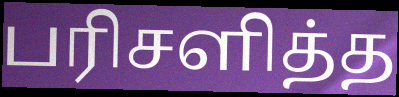
பரிசளித்த